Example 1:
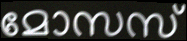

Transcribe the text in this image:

മോസസ്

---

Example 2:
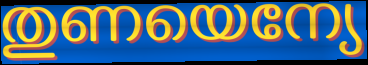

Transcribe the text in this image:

തുണയെന്യേ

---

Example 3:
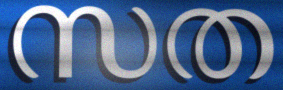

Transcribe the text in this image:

സത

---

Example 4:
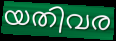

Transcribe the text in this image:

യതിവര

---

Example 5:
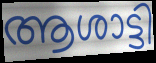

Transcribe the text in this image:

ആശാട്ടി